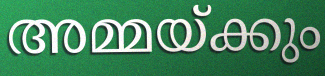
അമ്മയ്ക്കും